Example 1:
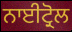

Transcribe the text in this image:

ਨਾਈਟ੍ਰੋਲ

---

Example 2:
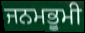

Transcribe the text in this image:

ਜਨਮਭੂਮੀ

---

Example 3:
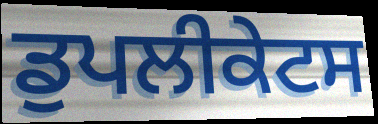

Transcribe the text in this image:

ਡੁਪਲੀਕੇਟਸ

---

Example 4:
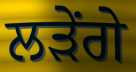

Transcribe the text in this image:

ਲੜੇਂਗੇ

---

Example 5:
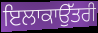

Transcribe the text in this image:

ਇਲਾਕਾਉੱਤਰੀ